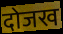
दोजख